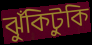
ঝুঁকিটুকি